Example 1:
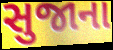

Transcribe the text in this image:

સુજાના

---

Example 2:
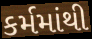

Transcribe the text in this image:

કર્મમાંથી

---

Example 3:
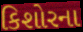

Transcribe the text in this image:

કિશોરના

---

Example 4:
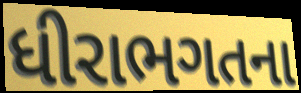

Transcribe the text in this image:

ધીરાભગતના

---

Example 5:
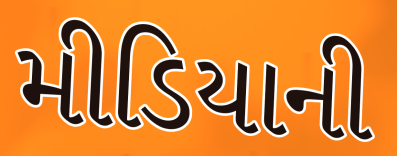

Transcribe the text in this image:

મીડિયાની